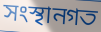
সংস্থানগত